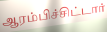
ஆரம்பிச்சிட்டார்